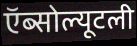
ऍब्सोल्यूटली